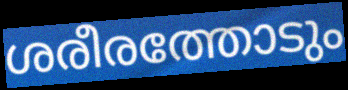
ശരീരത്തോടും